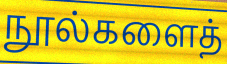
நூல்களைத்